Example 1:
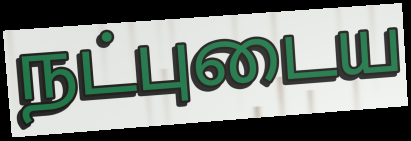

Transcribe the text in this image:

நட்புடைய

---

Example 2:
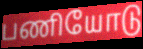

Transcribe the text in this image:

பணியோடு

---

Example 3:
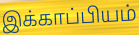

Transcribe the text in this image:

இக்காப்பியம்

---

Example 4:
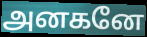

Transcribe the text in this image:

அனகனே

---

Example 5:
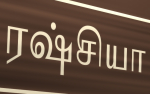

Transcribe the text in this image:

ரஷ்சியா